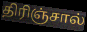
திரிஞ்சால்